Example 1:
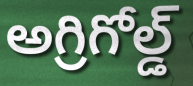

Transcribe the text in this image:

అగ్రిగోల్డ్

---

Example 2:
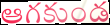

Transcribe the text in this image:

ఆగకుండ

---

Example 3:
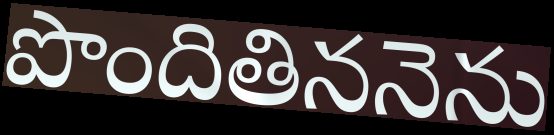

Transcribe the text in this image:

పొందితిననెను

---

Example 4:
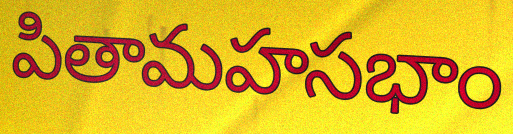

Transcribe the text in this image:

పితామహసభాం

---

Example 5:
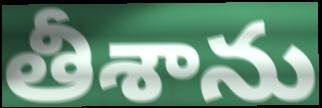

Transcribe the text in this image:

తీశాను